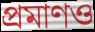
প্রমাণও